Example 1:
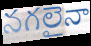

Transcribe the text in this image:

నగలైనా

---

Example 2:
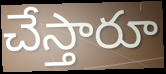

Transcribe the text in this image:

చేస్తారూ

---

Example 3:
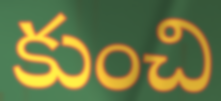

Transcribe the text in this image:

కుంచి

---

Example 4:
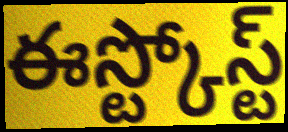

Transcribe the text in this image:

ఈస్ట్కోస్ట్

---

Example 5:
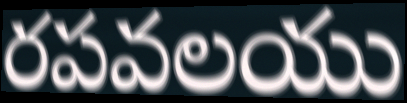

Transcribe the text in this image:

రపవలయు